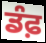
ਡੰਫ਼